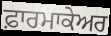
ਫ਼ਾਰਮਾਕੇਅਰ